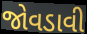
જોવડાવી